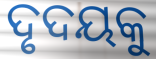
ଦୃଦୟକୁ